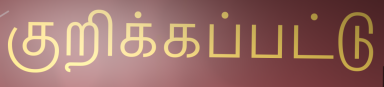
குறிக்கப்பட்டு